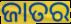
ଜାତର